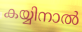
കയ്യിനാൽ